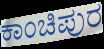
ಕಾಂಚಿಪುರ